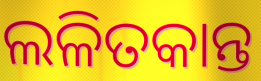
ଲଳିତକାନ୍ତ